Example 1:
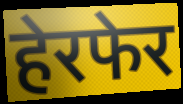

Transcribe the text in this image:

हेरफेर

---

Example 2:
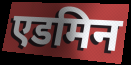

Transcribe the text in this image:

एडमिन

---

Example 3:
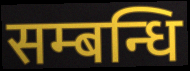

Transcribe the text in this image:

सम्बन्धि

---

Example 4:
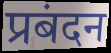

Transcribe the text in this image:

प्रबंदन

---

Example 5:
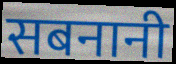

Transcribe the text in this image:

सबनानी